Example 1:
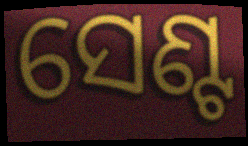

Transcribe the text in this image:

ସେଣ୍ଟ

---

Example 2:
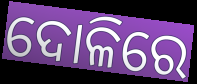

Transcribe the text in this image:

ଦୋଳିରେ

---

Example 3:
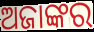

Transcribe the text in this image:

ଅଜାଙ୍କର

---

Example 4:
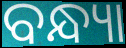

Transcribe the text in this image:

ବନ୍ଧ୍ୟା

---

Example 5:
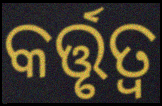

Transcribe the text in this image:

କର୍ତ୍ତୃତ୍ଵ